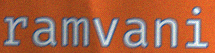
ramvani